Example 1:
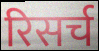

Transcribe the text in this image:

रिसर्च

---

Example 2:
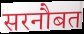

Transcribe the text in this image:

सरनौबत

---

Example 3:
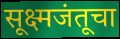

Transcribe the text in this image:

सूक्ष्मजंतूचा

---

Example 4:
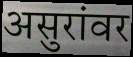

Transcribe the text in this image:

असुरांवर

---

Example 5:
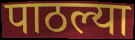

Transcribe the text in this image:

पाठल्या